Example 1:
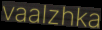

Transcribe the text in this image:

vaalzhka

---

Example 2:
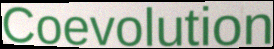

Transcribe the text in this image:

Coevolution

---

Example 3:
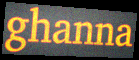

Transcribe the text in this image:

ghanna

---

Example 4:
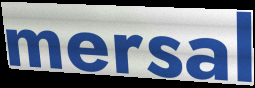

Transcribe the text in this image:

mersal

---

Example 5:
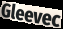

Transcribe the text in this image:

Gleevec